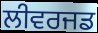
ਲੀਵਰਜਡ